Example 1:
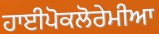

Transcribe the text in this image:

ਹਾਈਪੋਕਲੋਰੇਮੀਆ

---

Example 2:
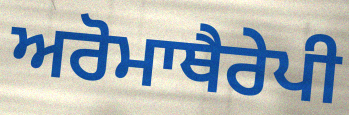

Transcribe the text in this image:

ਅਰੋਮਾਥੈਰੇਪੀ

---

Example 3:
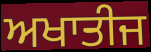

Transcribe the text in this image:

ਅਖਾਤੀਜ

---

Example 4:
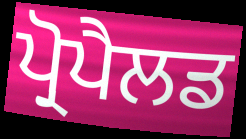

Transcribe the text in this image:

ਪ੍ਰੋਪੈਲਡ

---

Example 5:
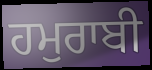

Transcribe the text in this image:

ਹਮੁਰਾਬੀ